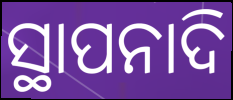
ସ୍ଥାପନାଦି